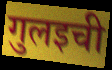
गुलइची